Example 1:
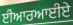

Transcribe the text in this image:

ਈਆਰਆਈਏ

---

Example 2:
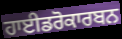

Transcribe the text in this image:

ਹਾਈਡਰੋਕਾਰਬਨ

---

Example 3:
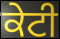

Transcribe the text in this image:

ਕੇਟੀ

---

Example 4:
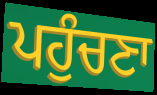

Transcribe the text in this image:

ਪਹੁੰਚਣਾ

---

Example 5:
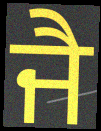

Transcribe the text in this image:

ਜੈ